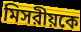
মিসরীয়কে